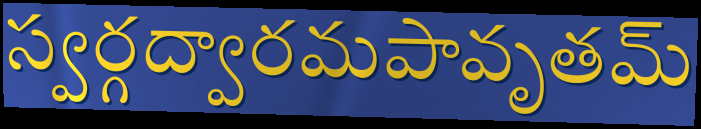
స్వర్గద్వారమపావృతమ్